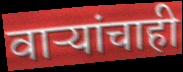
वाऱ्यांचाही